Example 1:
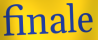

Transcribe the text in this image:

finale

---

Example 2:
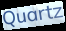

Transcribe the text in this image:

Quartz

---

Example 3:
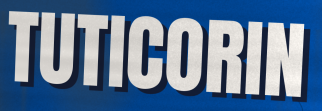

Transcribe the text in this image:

TUTICORIN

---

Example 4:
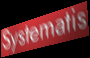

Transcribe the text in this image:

Systematis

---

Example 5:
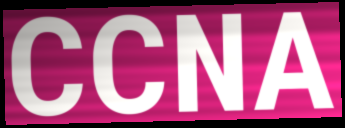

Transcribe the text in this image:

CCNA